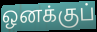
ஒனக்குப்